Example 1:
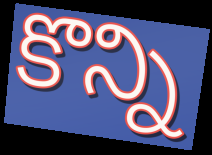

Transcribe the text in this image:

కొన్ని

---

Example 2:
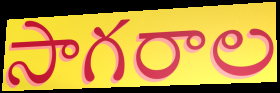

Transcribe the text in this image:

సాగరాల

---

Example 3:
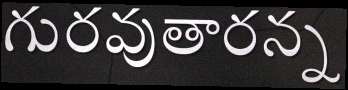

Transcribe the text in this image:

గురవుతారన్న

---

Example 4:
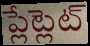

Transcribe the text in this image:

ప్లేట్లెట్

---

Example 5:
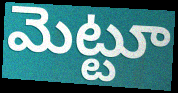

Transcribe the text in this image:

మెట్టూ